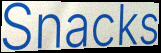
Snacks